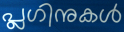
പ്ലഗിനുകൾ